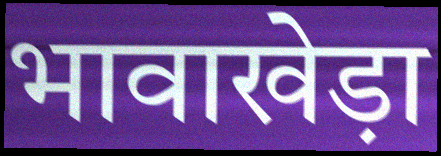
भावाखेड़ा